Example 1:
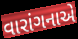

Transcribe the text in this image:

વારાંગનાએ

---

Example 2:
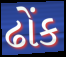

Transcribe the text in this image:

ઢોંક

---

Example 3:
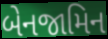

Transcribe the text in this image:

બેનજામિન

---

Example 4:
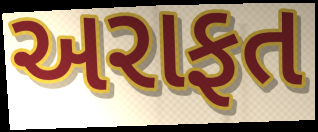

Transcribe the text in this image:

અરાફત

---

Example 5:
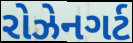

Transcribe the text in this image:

રોઝેનગર્ટ